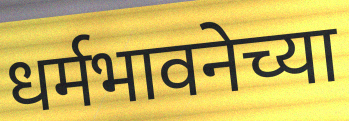
धर्मभावनेच्या